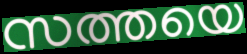
സത്തയെ